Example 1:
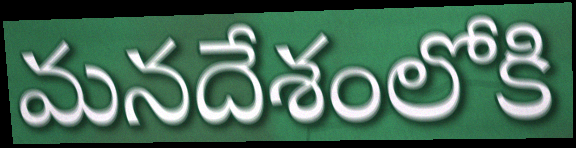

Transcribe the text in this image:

మనదేశంలోకి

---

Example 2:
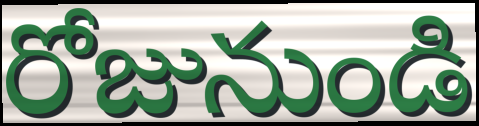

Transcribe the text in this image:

రోజునుండి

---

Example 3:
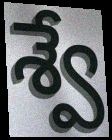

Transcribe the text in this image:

శ్వే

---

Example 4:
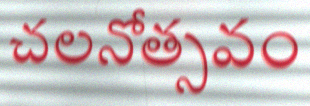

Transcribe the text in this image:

చలనోత్సవం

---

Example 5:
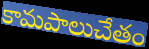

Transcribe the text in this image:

కామపాలుచేతం